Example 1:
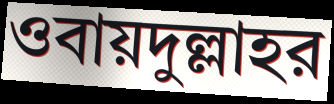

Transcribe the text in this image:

ওবায়দুল্লাহর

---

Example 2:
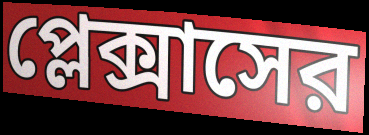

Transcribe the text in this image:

প্লেক্সাসের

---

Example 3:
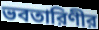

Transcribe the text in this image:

ভবতারিণীর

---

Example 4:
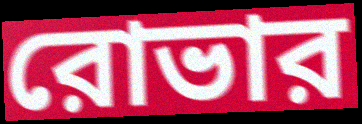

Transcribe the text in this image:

রোভার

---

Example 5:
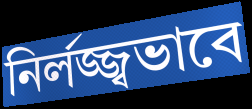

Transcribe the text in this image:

নির্লজ্জ্বভাবে